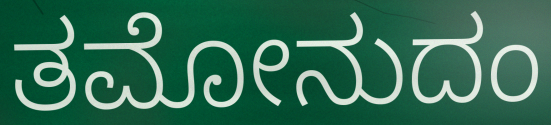
ತಮೋನುದಂ